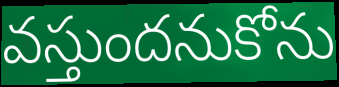
వస్తుందనుకోను